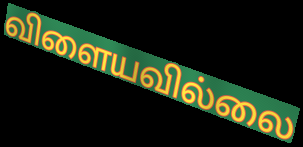
விளையவில்லை